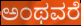
ಅಂಥವರೆ